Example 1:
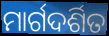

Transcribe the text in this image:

ମାର୍ଗଦର୍ଶିତ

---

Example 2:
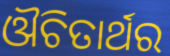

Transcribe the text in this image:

ଔଚିତାର୍ଥର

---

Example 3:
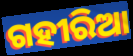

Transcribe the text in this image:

ଗହୀରିଆ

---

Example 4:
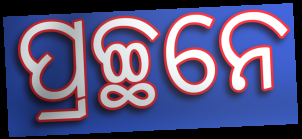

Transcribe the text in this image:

ପ୍ରଚ୍ଛନେ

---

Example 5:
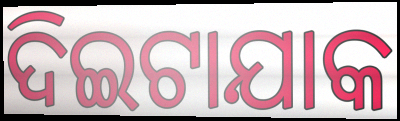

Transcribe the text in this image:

ଦିଇଟାଯାକ